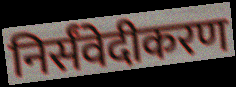
निर्संवेदीकरण